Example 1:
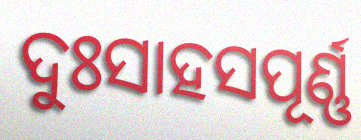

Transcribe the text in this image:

ଦୁଃସାହସପୂର୍ଣ୍ଣ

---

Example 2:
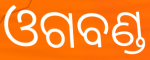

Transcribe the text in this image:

ଓଗବଣ୍ଡ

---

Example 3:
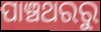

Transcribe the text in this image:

ପାଞ୍ଚଥରରୁ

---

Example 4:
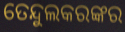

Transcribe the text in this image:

ତେନ୍ଦୁଲକରଙ୍କର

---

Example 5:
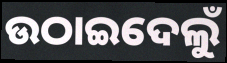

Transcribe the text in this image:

ଉଠାଇଦେଲୁଁ